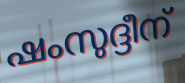
ഷംസുദ്ദീന്